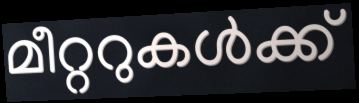
മീറ്ററുകൾക്ക്